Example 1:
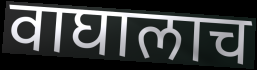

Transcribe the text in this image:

वाघालाच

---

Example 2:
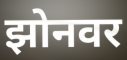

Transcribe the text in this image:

झोनवर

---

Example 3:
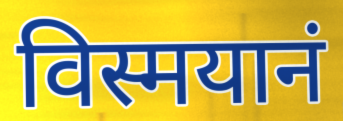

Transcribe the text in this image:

विस्मयानं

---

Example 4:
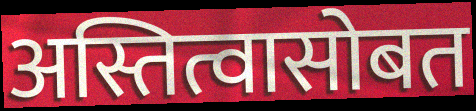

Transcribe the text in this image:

अस्तित्वासोबत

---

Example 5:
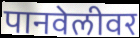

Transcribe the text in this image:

पानवेलीवर